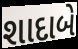
શાદાબે